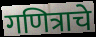
गणित्राचे